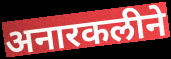
अनारकलीने